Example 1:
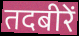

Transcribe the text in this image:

तदबीरें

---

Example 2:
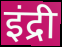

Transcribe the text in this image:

इंद्री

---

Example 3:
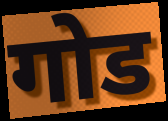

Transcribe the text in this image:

गोड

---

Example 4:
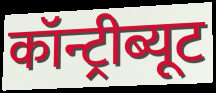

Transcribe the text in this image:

कॉन्ट्रीब्यूट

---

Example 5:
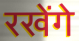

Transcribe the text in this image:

रखेंगे